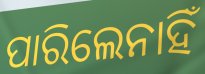
ପାରିଲେନାହିଁ